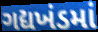
ગદ્યખંડમાં